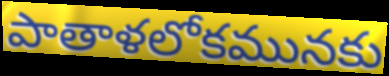
పాతాళలోకమునకు